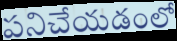
పనిచేయడంలో